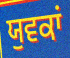
ਯੁਵਕਾਂ